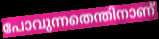
പോവുന്നതെന്തിനാണ്